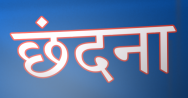
छंदना